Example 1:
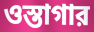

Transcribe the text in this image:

ওস্তাগার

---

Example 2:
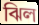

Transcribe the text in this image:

ঝিল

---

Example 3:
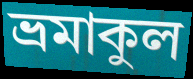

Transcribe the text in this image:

ভ্রমাকুল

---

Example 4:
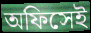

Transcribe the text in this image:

অফিসেই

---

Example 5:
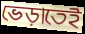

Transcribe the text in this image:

ভেড়াতেই